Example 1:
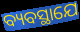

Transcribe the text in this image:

ବ୍ୟବସ୍ଥାଯେ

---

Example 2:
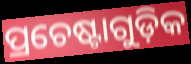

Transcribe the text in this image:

ପ୍ରଚେଷ୍ଟାଗୁଡ଼ିକ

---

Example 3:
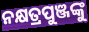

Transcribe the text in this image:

ନକ୍ଷତ୍ରପୁଞ୍ଜଙ୍କୁ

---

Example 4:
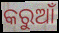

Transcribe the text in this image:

କରୁଆଁ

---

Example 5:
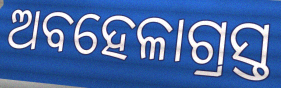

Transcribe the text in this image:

ଅବହେଳାଗ୍ରସ୍ତ